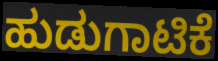
ಹುಡುಗಾಟಿಕೆ